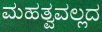
ಮಹತ್ವವಲ್ಲದ